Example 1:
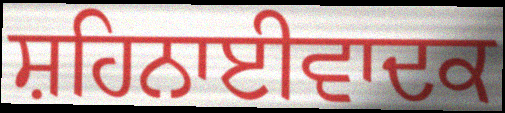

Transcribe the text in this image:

ਸ਼ਹਿਨਾਈਵਾਦਕ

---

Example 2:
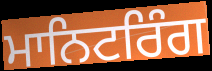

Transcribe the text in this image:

ਮਾਨਿਟਰਿੰਗ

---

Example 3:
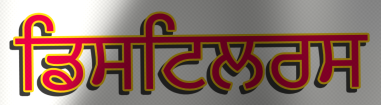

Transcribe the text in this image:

ਡਿਸਟਿਲਰਸ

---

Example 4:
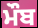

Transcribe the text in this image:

ਮੌਬ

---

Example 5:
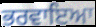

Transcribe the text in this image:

ਭਰਵਾਇਆ